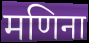
मणिना